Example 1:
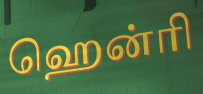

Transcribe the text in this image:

ஹென்ரி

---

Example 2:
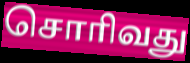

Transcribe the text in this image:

சொரிவது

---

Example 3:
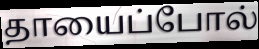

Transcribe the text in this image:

தாயைப்போல்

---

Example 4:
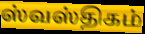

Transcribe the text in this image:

ஸ்வஸ்திகம்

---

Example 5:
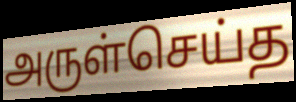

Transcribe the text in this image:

அருள்செய்த